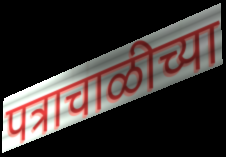
पत्राचाळीच्या